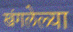
खंगलेल्या